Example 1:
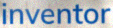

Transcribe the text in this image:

inventor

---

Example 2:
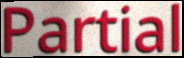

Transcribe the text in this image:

Partial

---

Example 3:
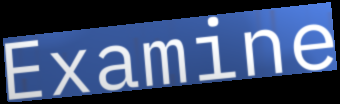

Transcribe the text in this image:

Examine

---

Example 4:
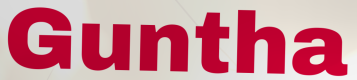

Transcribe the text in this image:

Guntha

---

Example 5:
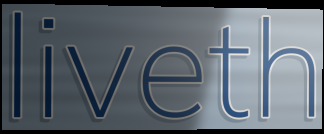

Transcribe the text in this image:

liveth